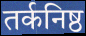
तर्कनिष्ठ